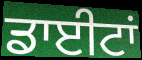
ਡਾਈਟਾਂ